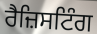
ਰੈਜ਼ਿਸਟਿੰਗ